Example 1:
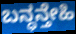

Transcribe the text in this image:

ಬನ್ಧನ್ತೇಹಿ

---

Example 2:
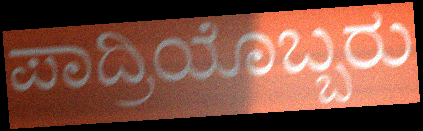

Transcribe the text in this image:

ಪಾದ್ರಿಯೊಬ್ಬರು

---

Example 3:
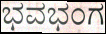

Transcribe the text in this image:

ಭವಭಂಗ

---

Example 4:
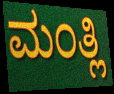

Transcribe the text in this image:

ಮಂತ್ಲಿ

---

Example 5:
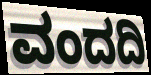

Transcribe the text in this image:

ವಂದದಿ